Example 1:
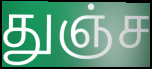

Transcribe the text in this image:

துஞ்ச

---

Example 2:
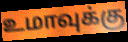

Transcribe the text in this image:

உமாவுக்கு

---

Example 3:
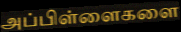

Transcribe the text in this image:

அப்பிள்ளைகளை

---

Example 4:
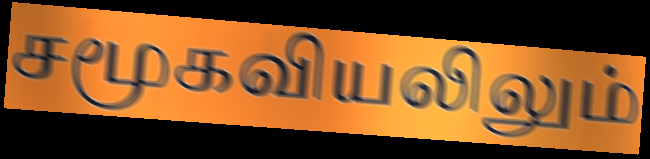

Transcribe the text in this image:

சமூகவியலிலும்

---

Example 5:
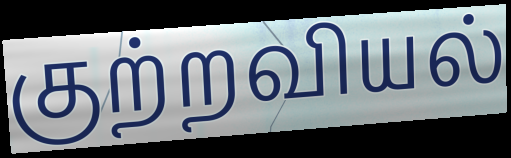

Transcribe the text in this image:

குற்றவியல்